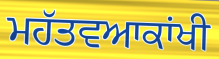
ਮਹੱਤਵਆਕਾਂਖੀ